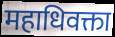
महाधिवक्ता